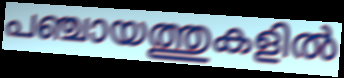
പഞ്ചായത്തുകളിൽ